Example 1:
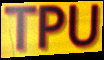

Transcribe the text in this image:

TPU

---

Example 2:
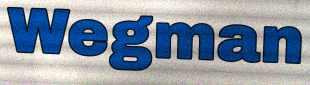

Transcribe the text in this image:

Wegman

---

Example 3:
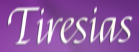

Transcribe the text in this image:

Tiresias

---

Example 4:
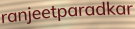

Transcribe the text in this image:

ranjeetparadkar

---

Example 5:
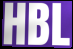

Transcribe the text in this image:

HBL